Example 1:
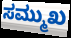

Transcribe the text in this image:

ಸಮ್ಮುಖ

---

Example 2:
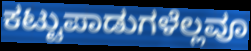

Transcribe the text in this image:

ಕಟ್ಟುಪಾಡುಗಳೆಲ್ಲವೂ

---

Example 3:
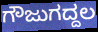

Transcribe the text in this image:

ಗೌಜುಗದ್ದಲ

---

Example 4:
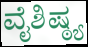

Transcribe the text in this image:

ವೈಶಿಷ್ಠ್ಯ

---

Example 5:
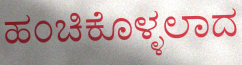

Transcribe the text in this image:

ಹಂಚಿಕೊಳ್ಳಲಾದ